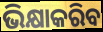
ଭିକ୍ଷାକରିବ